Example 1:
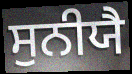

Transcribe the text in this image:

ਸੁਨੀਯੈ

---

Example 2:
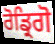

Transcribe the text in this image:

ਰੋਡ੍ਰਿਗੋ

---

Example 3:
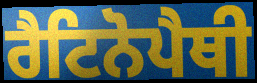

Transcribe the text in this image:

ਰੈਟਿਨੋਪੈਥੀ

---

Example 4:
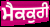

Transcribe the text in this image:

ਮੈਕਕੁਰੀ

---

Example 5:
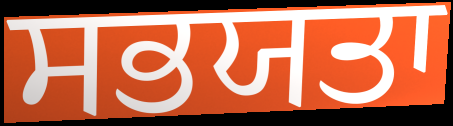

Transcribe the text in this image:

ਸਭਯਤਾ